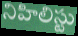
నిహిలిస్టు